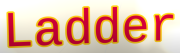
Ladder